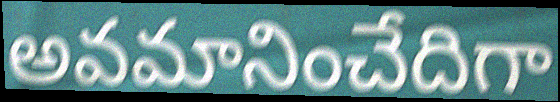
అవమానించేదిగా